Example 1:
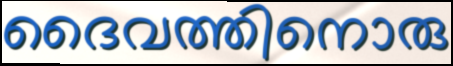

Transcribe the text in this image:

ദൈവത്തിനൊരു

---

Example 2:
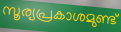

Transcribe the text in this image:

സൂര്യപ്രകാശമുണ്ട്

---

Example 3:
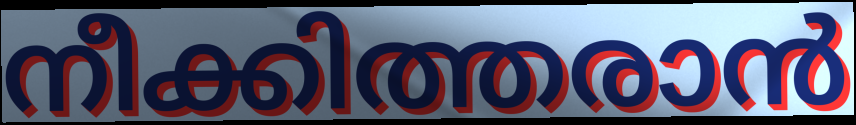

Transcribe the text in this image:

നീക്കിത്തരാൻ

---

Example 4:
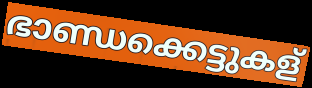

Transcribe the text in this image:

ഭാണ്ഡക്കെട്ടുകള്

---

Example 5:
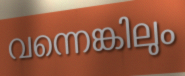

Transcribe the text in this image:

വന്നെങ്കിലും